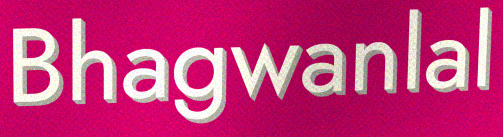
Bhagwanlal